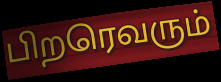
பிறரெவரும்